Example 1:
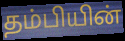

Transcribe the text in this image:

தம்பியின்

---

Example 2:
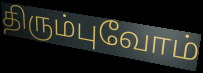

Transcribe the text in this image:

திரும்புவோம்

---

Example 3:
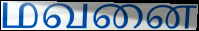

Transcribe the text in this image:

மவனை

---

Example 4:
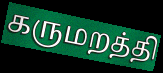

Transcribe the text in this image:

கருமறத்தி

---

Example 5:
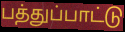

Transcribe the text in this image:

பத்துப்பாட்டு